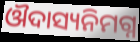
ଔଦାସ୍ୟନିମଗ୍ନ